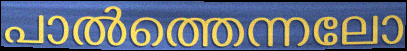
പാൽത്തെന്നലോ